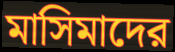
মাসিমাদের